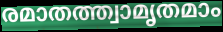
രമാതത്ത്വാമൃതമാം